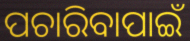
ପଚାରିବାପାଇଁ